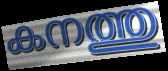
കനത്തു